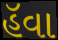
હૅવા